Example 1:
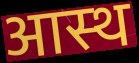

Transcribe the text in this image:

आस्थ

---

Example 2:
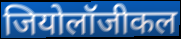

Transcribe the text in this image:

जियोलॉजीकल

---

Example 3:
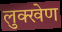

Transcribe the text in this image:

लुक्खेण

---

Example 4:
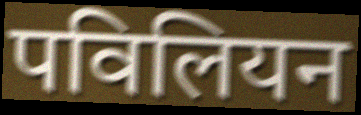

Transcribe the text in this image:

पविलियन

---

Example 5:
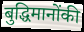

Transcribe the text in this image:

बुद्धिमानोंकी